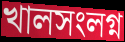
খালসংলগ্ন